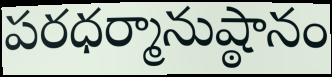
పరధర్మానుష్ఠానం